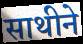
साथीने